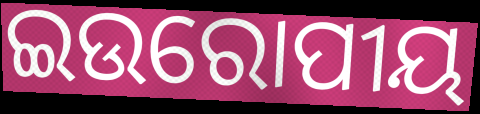
ଇଉରୋପୀୟ